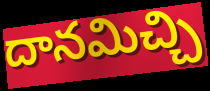
దానమిచ్చి